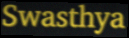
Swasthya